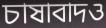
চাষাবাদও